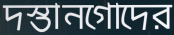
দস্তানগোদের